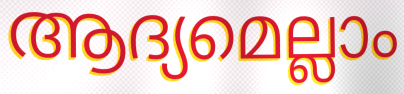
ആദ്യമെല്ലാം